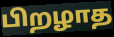
பிறழாத